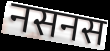
नसनस